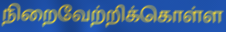
நிறைவேற்றிக்கொள்ள